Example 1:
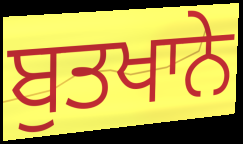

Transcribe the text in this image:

ਬੁਤਖਾਨੇ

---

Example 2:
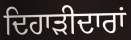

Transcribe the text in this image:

ਦਿਹਾੜੀਦਾਰਾਂ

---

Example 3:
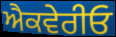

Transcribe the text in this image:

ਐਕਵੇਰੀਓ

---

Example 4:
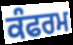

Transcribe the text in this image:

ਕੰਫਰਮ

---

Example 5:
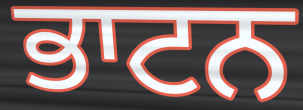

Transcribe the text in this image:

ਭਾਟਨ